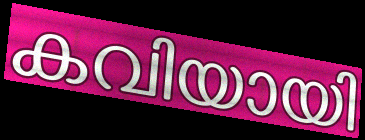
കവിയായി